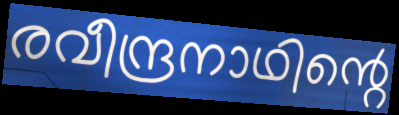
രവീന്ദ്രനാഥിന്റെ